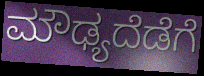
ಮೌಢ್ಯದೆಡೆಗೆ